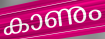
കാണും